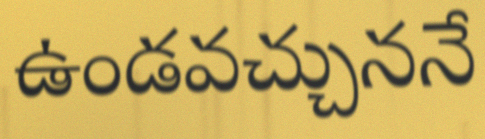
ఉండవచ్చుననే